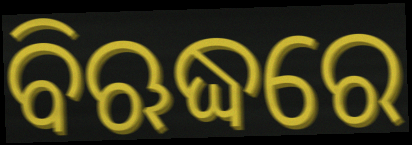
ବିଋଦ୍ଧରେ